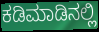
ಕಡಿಮಾಡಿನಲ್ಲಿ